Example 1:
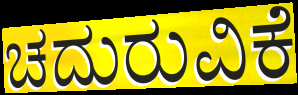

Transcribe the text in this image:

ಚದುರುವಿಕೆ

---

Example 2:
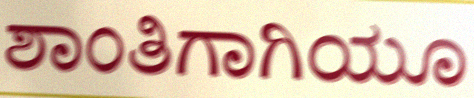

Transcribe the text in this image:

ಶಾಂತಿಗಾಗಿಯೂ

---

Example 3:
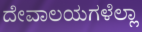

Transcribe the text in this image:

ದೇವಾಲಯಗಳೆಲ್ಲಾ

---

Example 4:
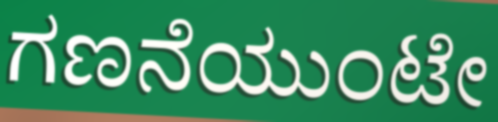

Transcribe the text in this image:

ಗಣನೆಯುಂಟೇ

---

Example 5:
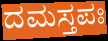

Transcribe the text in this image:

ದಮಸ್ತಪಃ